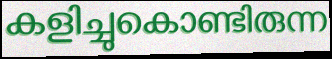
കളിച്ചുകൊണ്ടിരുന്ന